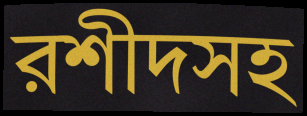
রশীদসহ